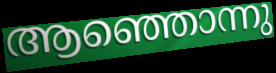
ആഞ്ഞൊന്നു